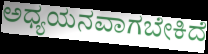
ಅಧ್ಯಯನವಾಗಬೇಕಿದೆ